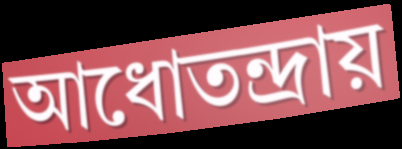
আধোতন্দ্রায়